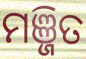
ମଞ୍ଜିତ